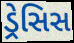
ડ્રેસિસ